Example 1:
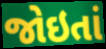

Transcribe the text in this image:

જોઇતાં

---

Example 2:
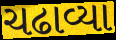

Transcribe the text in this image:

ચઢાવ્યા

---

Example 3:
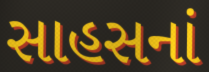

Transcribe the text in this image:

સાહસનાં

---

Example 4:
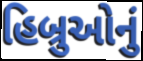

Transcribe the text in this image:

હિબ્રુઓનું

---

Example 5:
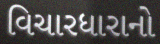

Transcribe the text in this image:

વિચારધારાનો